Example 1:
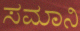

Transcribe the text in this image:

ಸಮಾನಿ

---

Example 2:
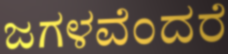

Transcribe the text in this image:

ಜಗಳವೆಂದರೆ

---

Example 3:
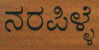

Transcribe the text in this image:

ನರಪಿಳ್ಳೆ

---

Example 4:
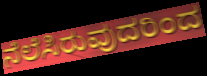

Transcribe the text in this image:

ನೆಲೆಸಿರುವುದರಿಂದ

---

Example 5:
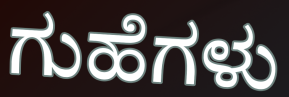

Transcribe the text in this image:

ಗುಹೆಗಳು